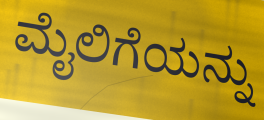
ಮೈಲಿಗೆಯನ್ನು